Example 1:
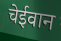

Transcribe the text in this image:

चेईवान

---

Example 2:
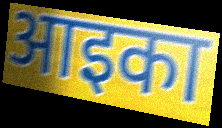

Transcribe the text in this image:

आइका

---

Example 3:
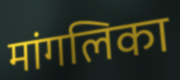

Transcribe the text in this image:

मांगलिका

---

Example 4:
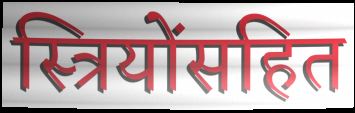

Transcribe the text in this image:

स्त्रियोंसहित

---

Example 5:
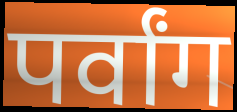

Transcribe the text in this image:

पर्वांग